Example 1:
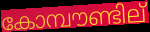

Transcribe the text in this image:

കോമ്പൗണ്ടില്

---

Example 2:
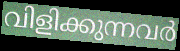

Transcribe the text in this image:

വിളിക്കുന്നവർ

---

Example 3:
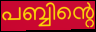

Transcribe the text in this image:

പബ്ബിന്റെ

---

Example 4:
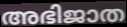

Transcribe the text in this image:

അഭിജാത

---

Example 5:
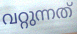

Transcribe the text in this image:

വറ്റുന്നത്